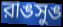
রাঙসুঙ